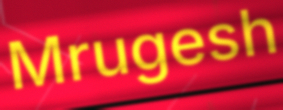
Mrugesh